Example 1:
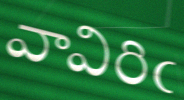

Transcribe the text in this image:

వావిరిఁ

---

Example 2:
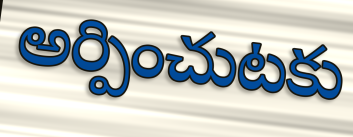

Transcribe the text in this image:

అర్పించుటకు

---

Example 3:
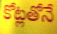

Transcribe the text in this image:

కోట్లతోనే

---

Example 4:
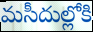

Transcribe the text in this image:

మసీదుల్లోకి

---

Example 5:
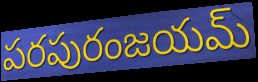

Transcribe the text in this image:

పరపురంజయమ్